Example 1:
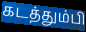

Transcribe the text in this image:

கடத்தும்பி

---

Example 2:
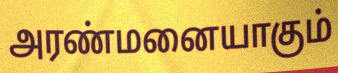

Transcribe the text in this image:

அரண்மனையாகும்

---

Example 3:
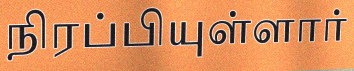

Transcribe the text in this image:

நிரப்பியுள்ளார்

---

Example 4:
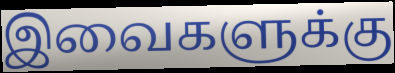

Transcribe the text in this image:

இவைகளுக்கு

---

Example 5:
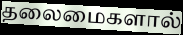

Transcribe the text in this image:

தலைமைகளால்